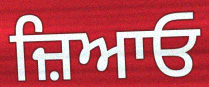
ਜ਼ਿਆਓ